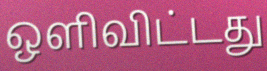
ஒளிவிட்டது